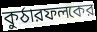
কুঠারফলকের